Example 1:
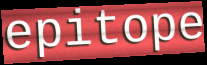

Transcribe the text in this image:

epitope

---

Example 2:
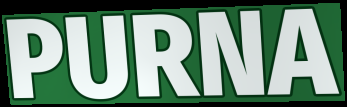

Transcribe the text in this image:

PURNA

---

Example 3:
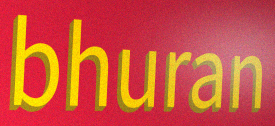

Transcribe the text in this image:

bhuran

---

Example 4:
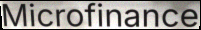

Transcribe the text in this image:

Microfinance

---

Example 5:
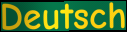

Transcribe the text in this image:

Deutsch